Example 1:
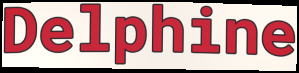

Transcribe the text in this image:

Delphine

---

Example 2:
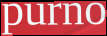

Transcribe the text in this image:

purno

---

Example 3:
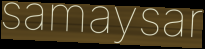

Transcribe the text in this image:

samaysar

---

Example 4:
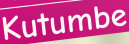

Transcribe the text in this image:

Kutumbe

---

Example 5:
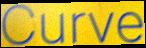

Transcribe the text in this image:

Curve